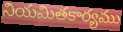
నియమితకార్యము